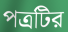
পত্রটির